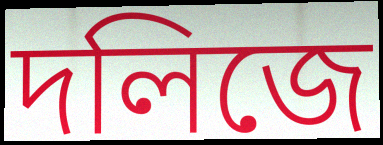
দলিজে